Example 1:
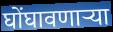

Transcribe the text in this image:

घोंघावणाऱ्या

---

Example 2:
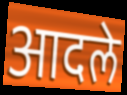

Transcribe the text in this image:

आदले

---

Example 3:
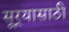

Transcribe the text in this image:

सूर्यासाठी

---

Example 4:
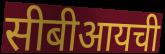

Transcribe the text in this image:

सीबीआयची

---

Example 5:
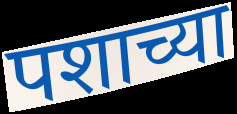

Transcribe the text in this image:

पशाच्या